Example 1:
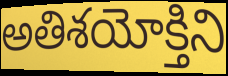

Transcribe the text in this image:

అతిశయోక్తిని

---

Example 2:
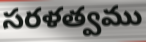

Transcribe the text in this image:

సరళత్వము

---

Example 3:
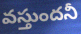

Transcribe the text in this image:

వస్తుందనీ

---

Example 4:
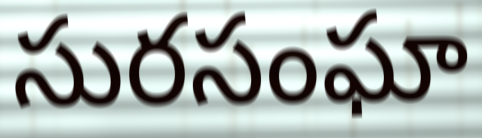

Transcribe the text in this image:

సురసంఘా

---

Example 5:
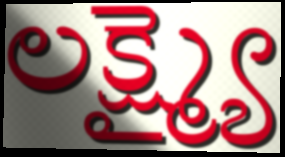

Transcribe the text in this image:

లక్ష్మ్యై